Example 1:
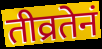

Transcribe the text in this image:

तीव्रतेनं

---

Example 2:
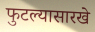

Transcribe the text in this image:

फुटल्यासारखे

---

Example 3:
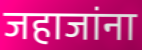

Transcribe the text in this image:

जहाजांना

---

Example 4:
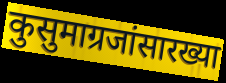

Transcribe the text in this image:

कुसुमाग्रजांसारख्या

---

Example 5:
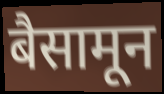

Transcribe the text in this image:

बैसामून